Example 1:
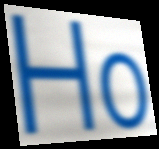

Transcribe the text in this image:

Ho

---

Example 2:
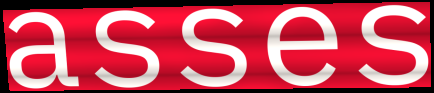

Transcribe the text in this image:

asses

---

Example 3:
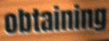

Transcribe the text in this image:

obtaining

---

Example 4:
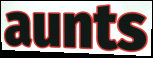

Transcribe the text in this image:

aunts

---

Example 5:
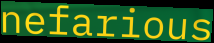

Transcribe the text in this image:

nefarious